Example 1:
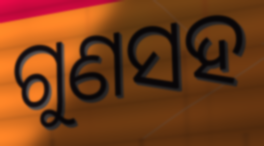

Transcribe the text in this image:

ଗୁଣସହ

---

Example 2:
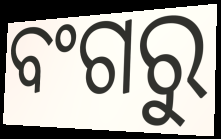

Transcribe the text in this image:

ବଂଗରୁ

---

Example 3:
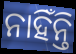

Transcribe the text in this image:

ନାହିଁନ୍ତି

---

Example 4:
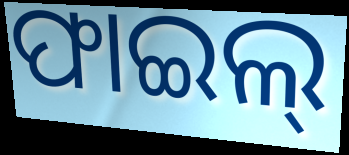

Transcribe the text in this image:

ଫାଇଲ୍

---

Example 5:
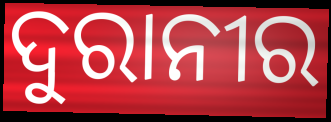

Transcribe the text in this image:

ଦୁରାନୀର